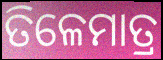
ତିଳେମାତ୍ର